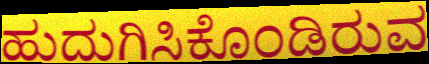
ಹುದುಗಿಸಿಕೊಂಡಿರುವ